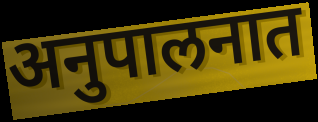
अनुपालनात